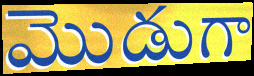
మొడుగా